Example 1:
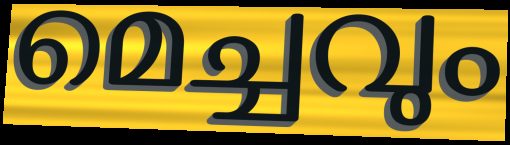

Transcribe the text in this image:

മെച്ചവും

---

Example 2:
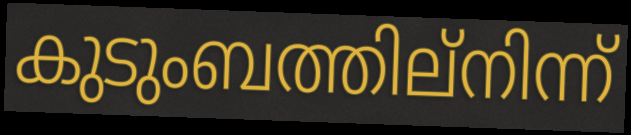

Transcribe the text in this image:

കുടുംബത്തില്നിന്ന്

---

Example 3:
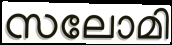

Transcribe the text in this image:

സലോമി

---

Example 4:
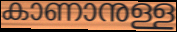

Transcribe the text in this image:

കാണാനുള്ള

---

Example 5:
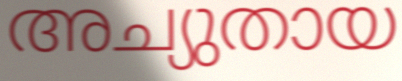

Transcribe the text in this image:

അച്യുതായ